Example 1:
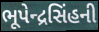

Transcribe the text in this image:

ભૂપેન્દ્રસિંહની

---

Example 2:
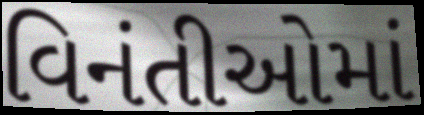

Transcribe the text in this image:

વિનંતીઓમાં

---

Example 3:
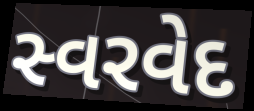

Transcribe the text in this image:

સ્વરવેદ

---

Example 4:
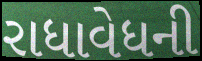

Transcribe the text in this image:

રાધાવેધની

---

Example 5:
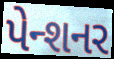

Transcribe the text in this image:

પેન્શનર